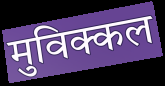
मुविक्कल